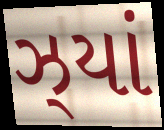
ઝ્યાં